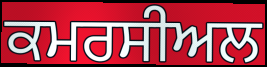
ਕਮਰਸੀਅਲ